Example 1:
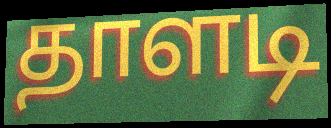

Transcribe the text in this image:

தாளடி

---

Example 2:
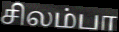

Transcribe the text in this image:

சிலம்பா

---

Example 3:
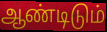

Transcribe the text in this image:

ஆண்டிடும்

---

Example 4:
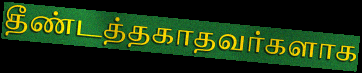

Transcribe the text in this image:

தீண்டத்தகாதவர்களாக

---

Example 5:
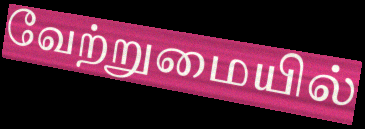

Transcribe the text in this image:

வேற்றுமையில்